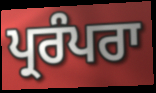
ਪ੍ਰਰੰਪਰਾ